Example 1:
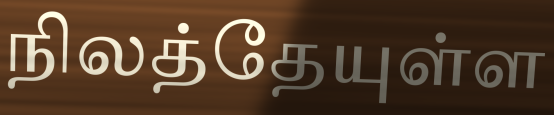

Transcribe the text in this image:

நிலத்தேயுள்ள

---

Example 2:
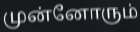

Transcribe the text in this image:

முன்னோரும்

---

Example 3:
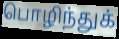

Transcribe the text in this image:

பொழிந்துக்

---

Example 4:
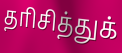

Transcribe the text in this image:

தரிசித்துக்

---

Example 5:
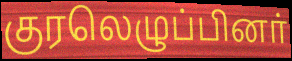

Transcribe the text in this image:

குரலெழுப்பினர்